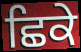
ਛਿਕੇ